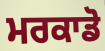
ਮਰਕਾਡੋ